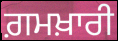
ਗ਼ਮਖ਼ਾਰੀ